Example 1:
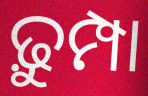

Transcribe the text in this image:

ଢ଼ୁମ୍ପା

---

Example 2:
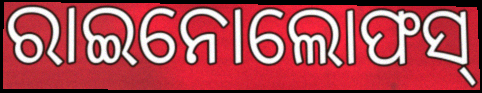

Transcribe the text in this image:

ରାଇନୋଲୋଫସ୍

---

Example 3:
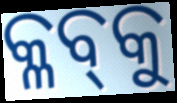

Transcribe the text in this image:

କ୍ଳବ୍‍କୁ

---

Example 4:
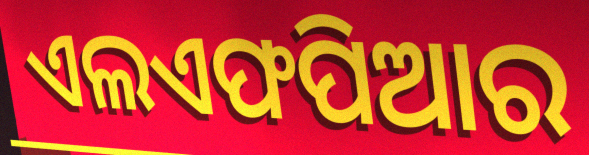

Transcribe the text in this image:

ଏଲଏଫପିଆର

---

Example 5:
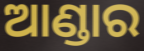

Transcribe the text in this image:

ଆଣ୍ଡାର